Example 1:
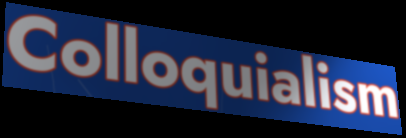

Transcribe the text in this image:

Colloquialism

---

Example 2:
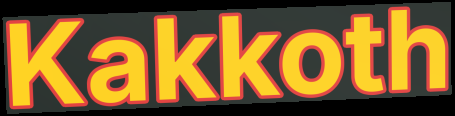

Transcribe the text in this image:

Kakkoth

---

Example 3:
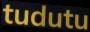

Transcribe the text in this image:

tudutu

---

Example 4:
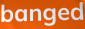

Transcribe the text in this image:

banged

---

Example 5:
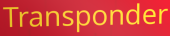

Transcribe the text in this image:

Transponder